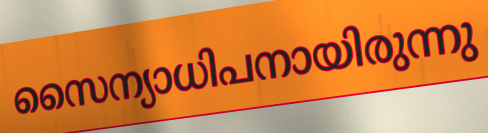
സൈന്യാധിപനായിരുന്നു